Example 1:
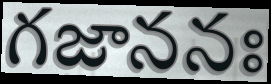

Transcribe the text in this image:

గజాననః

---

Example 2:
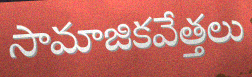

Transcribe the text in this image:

సామాజికవేత్తలు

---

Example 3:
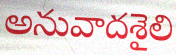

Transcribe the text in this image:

అనువాదశైలి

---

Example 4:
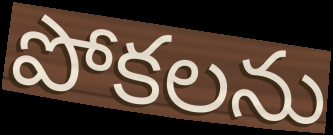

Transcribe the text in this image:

పోకలను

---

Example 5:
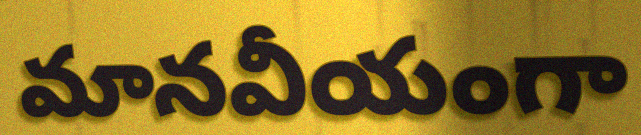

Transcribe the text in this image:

మానవీయంగా